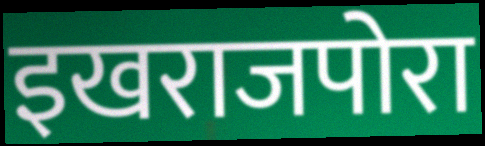
इखराजपोरा